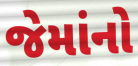
જેમાંનો